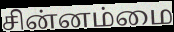
சின்னம்மை